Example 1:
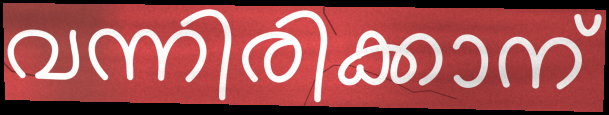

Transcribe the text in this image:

വന്നിരിക്കാന്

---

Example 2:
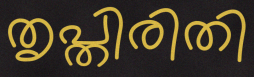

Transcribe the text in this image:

തൃപ്തിരിതി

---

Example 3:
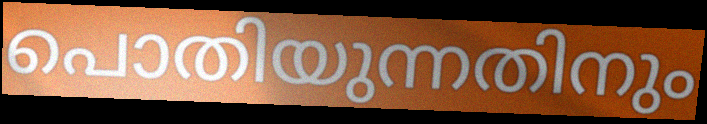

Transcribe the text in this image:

പൊതിയുന്നതിനും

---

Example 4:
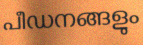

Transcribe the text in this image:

പീഡനങ്ങളും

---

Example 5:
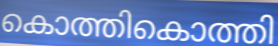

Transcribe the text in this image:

കൊത്തികൊത്തി